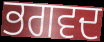
ਭਗਵਦ